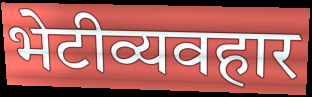
भेटीव्यवहार